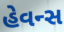
હેવન્સ